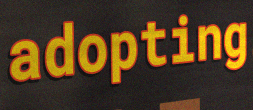
adopting